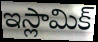
ఇస్లామిక్